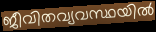
ജീവിതവ്യവസ്ഥയിൽ